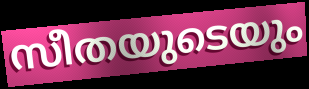
സീതയുടെയും